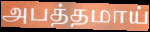
அபத்தமாய்